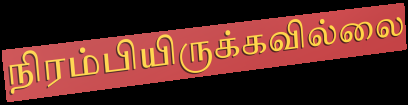
நிரம்பியிருக்கவில்லை